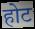
होट